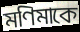
মণিমাকে